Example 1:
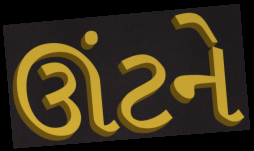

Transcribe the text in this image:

ઊંટને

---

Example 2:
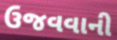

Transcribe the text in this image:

ઉજવવાની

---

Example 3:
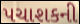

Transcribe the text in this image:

પચાશકની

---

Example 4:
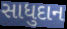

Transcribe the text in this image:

સાધુદાન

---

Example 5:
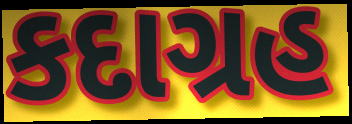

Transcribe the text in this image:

કદાગ્રહ